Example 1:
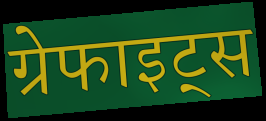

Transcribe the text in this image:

ग्रेफाइट्स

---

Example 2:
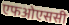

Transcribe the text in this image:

एफओएससी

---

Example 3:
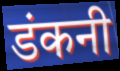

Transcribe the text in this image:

डंकनी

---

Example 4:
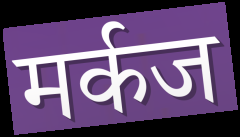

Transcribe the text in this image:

मर्कज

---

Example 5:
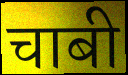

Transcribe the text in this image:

चाबी